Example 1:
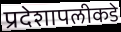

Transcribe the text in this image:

प्रदेशापलीकडे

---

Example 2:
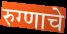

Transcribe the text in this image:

रुग्‍णाचे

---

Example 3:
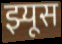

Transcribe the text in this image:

झ्यूस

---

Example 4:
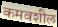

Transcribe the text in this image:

कमवशील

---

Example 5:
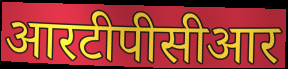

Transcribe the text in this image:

आरटीपीसीआर